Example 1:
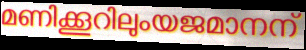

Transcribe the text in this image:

മണിക്കൂറിലുംയജമാനന്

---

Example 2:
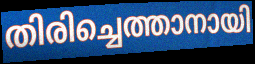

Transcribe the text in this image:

തിരിച്ചെത്താനായി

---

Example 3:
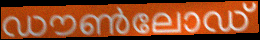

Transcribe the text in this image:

ഡൗൺലോഡ്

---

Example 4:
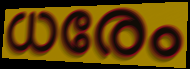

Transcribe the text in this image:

ധരേം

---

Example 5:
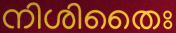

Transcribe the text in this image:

നിശിതൈഃ